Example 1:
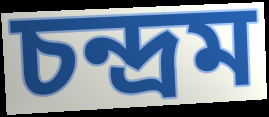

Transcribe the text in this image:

চন্দ্রম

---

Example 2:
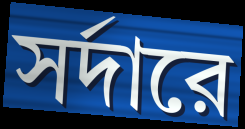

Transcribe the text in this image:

সর্দারে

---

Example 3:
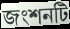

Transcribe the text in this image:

জংশনটি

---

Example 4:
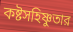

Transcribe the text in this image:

কষ্টসহিষ্ণুতার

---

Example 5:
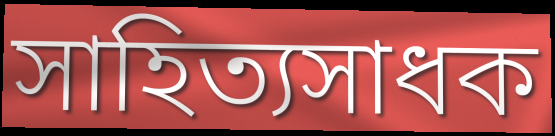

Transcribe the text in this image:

সাহিত্যসাধক